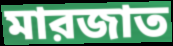
মারজাত